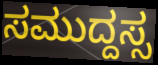
ಸಮುದ್ದಸ್ಸ